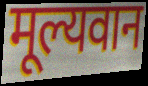
मूल्यवान